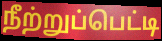
நீற்றுப்பெட்டி